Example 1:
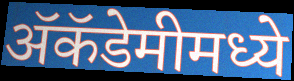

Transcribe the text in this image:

ॲकॅडेमीमध्ये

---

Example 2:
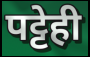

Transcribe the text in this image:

पट्टेही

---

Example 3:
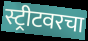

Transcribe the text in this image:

स्ट्रीटवरचा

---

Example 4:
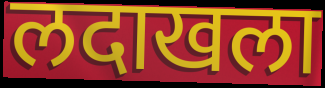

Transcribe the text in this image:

लदाखला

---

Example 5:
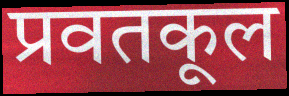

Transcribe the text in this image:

प्रवतकूल